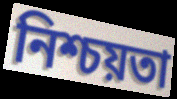
নিশ্চয়তা